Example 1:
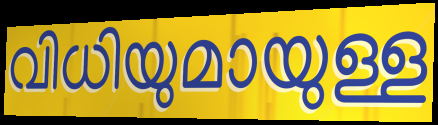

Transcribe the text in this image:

വിധിയുമായുള്ള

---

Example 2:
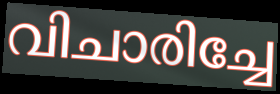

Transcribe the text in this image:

വിചാരിച്ചേ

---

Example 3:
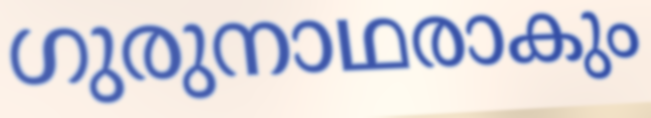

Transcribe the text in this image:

ഗുരുനാഥരാകും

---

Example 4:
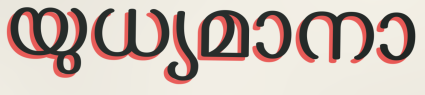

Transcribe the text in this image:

യുധ്യമാനാ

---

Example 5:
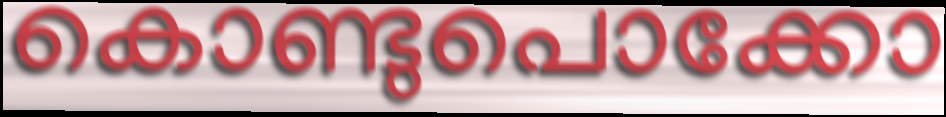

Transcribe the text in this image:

കൊണ്ടുപൊക്കോ